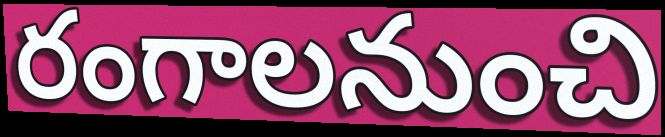
రంగాలనుంచి